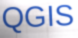
QGIS